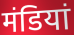
मंडियां